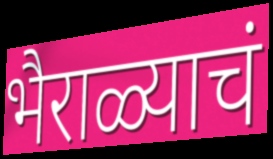
भैराळ्याचं